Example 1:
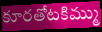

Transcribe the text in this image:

కూరతోటకిమ్ము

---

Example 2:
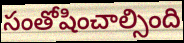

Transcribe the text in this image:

సంతోషించాల్సింది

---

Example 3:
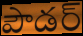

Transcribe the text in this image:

పౌడర్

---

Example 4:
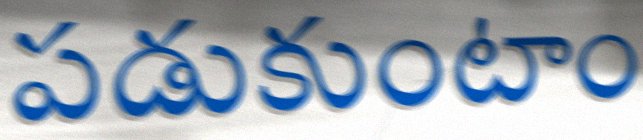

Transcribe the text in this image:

పడుకుంటాం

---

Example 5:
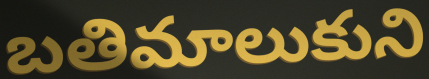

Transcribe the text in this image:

బతిమాలుకుని